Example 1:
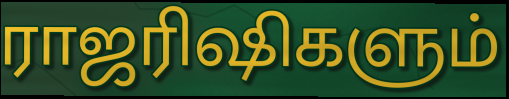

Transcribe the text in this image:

ராஜரிஷிகளும்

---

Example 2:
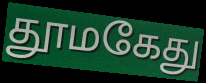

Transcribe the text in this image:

தூமகேது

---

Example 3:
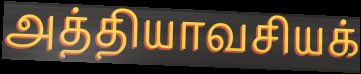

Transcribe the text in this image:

அத்தியாவசியக்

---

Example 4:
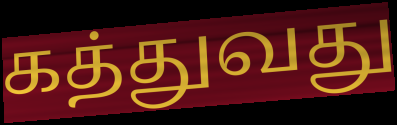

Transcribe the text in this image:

கத்துவது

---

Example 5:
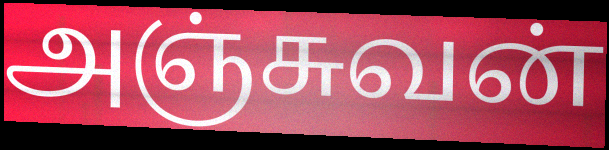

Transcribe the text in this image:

அஞ்சுவன்